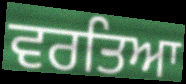
ਵਰਤਿਆ